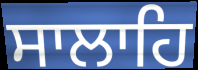
ਸਾਲਾਹਿ